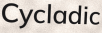
Cycladic